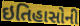
ઇતિહાસોની